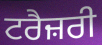
ਟਰੈਜ਼ਰੀ